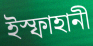
ইস্ফাহানী